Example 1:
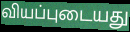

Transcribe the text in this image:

வியப்புடையது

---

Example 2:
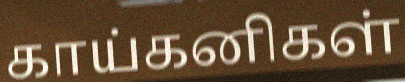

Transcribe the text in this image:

காய்கனிகள்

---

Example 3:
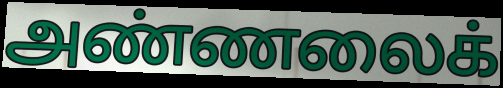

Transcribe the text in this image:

அண்ணலைக்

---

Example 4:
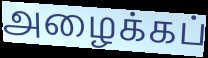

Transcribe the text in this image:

அழைக்கப்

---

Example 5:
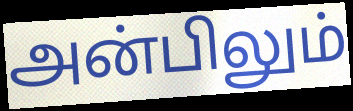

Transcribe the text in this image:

அன்பிலும்